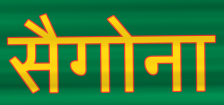
सैगोना